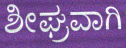
ಶೀಘ್ರವಾಗಿ